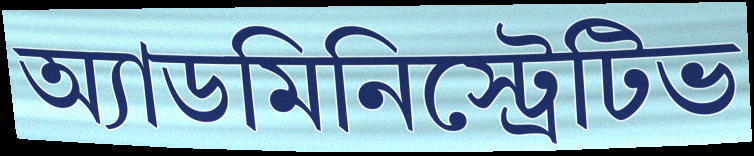
অ্যাডমিনিস্ট্রেটিভ